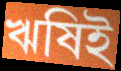
ঋষিই